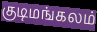
குடிமங்கலம்